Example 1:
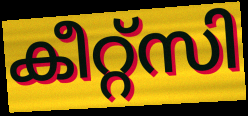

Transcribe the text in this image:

കീറ്റ്സി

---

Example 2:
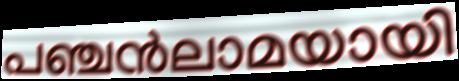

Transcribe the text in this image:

പഞ്ചൻലാമയായി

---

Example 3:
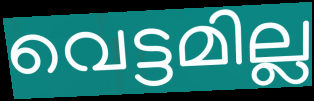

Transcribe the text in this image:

വെട്ടമില്ല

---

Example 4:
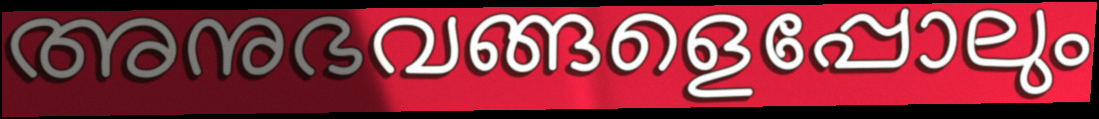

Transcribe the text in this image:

അനുഭവങ്ങളെപ്പോലും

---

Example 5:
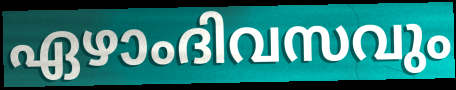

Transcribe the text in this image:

ഏഴാംദിവസവും